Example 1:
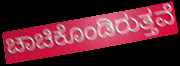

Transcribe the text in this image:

ಚಾಚಿಕೊಂಡಿರುತ್ತವೆ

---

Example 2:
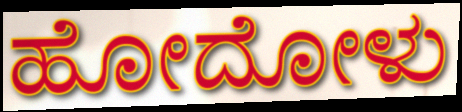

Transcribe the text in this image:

ಹೋದೋಳು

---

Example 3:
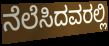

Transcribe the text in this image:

ನೆಲೆಸಿದವರಲ್ಲಿ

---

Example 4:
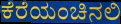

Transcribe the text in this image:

ಕೆರೆಯಂಚಿನಲಿ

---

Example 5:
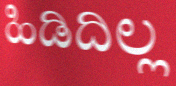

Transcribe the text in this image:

ಹಿಡಿದಿಲ್ಲ